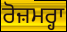
ਰੋਜ਼ਮਰ੍ਹਾ